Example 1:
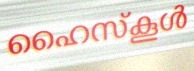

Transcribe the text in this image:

ഹൈസ്‌കൂൾ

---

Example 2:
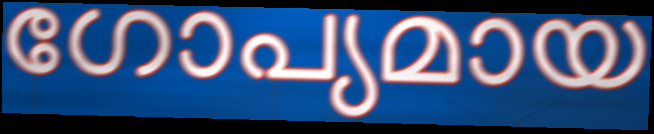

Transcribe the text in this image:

ഗോപ്യമായ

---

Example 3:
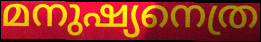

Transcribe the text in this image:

മനുഷ്യനെത്ര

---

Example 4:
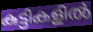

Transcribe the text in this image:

കുട്ടികളിൽ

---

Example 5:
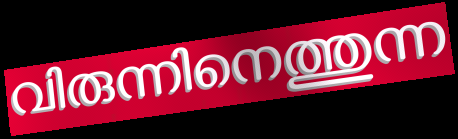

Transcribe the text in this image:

വിരുന്നിനെത്തുന്ന